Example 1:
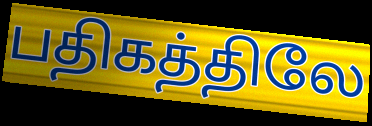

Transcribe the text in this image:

பதிகத்திலே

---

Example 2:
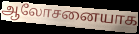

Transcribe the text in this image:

ஆலோசனையாக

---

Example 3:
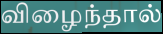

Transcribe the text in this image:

விழைந்தால்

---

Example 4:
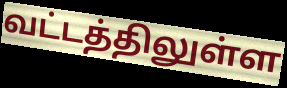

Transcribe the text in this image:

வட்டத்திலுள்ள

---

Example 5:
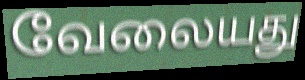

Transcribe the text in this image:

வேலையது